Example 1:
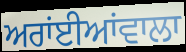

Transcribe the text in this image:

ਅਰਾਂਈਆਂਵਾਲਾ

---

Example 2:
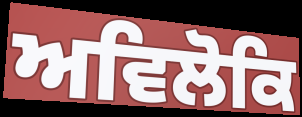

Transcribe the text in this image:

ਅਵਿਲੋਕਿ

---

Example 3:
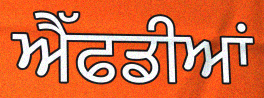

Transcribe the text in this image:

ਐੱਫਡੀਆਂ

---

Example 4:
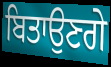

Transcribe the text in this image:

ਬਿਤਾਉਣਗੇ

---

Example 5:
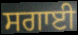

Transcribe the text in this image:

ਸਗਾਈ